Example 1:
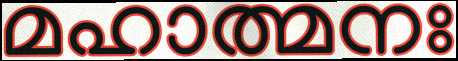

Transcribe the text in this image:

മഹാത്മനഃ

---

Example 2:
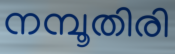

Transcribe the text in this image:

നമ്പൂതിരി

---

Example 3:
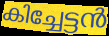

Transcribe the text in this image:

കിച്ചേട്ടൻ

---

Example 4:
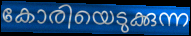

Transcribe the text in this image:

കോരിയെടുക്കുന്ന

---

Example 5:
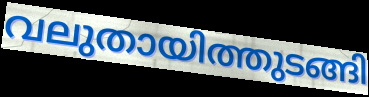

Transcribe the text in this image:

വലുതായിത്തുടങ്ങി